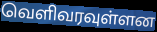
வெளிவரவுள்ளன